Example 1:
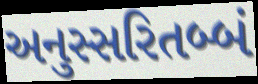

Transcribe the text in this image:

અનુસ્સરિતબ્બં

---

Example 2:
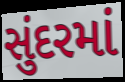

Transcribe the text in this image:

સુંદરમાં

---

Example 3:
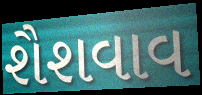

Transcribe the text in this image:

શૈશવાવ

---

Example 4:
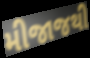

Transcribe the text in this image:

મીજાજથી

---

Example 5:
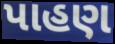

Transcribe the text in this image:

પાહણ